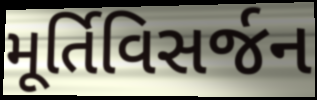
મૂર્તિવિસર્જન